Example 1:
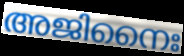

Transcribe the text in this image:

അജിനൈഃ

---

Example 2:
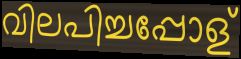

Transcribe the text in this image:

വിലപിച്ചപ്പോള്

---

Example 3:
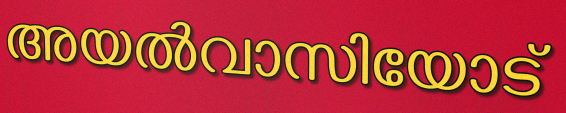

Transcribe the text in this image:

അയൽവാസിയോട്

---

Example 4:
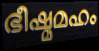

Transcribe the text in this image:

ഭീഷ്മമഹം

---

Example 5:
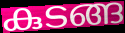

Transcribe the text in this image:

കുടങ്ങ